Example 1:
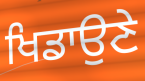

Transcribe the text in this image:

ਖਿਡਾਉਣੇ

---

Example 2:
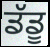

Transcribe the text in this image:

ਡੱਡੂ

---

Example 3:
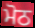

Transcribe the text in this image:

ਮੋਠ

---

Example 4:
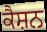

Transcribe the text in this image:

ਕੈਸ਼ਨ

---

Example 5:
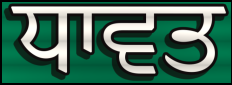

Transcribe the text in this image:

ਧਾਵਤ